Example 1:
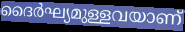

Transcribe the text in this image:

ദൈർഘ്യമുള്ളവയാണ്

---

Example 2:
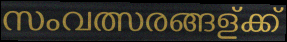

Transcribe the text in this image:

സംവത്സരങ്ങള്ക്ക്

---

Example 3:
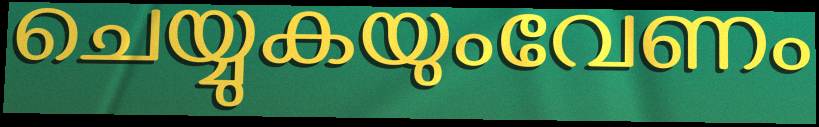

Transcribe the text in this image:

ചെയ്യുകയുംവേണം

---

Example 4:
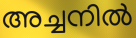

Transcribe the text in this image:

അച്ചനിൽ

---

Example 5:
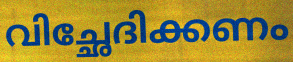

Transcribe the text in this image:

വിച്ഛേദിക്കണം